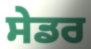
ਸੇਡਰ